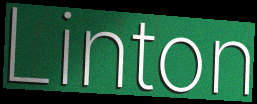
Linton